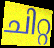
ചിറ്റ